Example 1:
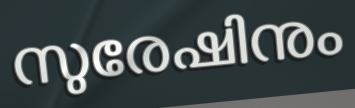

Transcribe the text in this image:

സുരേഷിനും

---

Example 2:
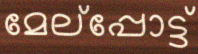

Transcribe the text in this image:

മേല്പ്പോട്ട്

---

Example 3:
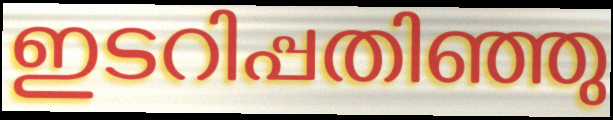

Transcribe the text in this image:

ഇടറിപ്പതിഞ്ഞു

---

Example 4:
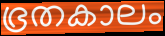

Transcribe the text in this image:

ഭ്രതകാലം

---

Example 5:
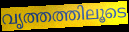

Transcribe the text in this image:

വൃത്തത്തിലൂടെ